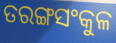
ତରଙ୍ଗସଂକୁଳ